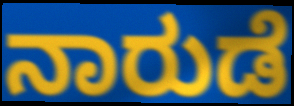
ನಾರುಡೆ